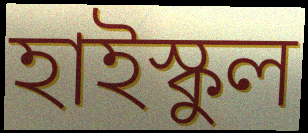
হাইস্কুল